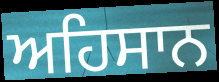
ਅਹਿਸਾਨ